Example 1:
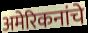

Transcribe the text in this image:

अमेरिकनांचे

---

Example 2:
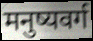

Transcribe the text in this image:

मनुष्यवर्ग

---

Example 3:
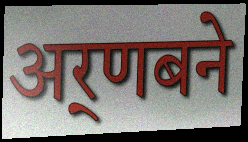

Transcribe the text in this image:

अर्णबने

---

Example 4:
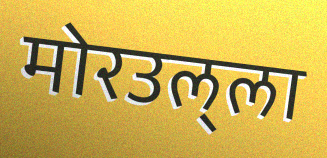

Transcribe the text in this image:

मोरउल्ला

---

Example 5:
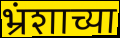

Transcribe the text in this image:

भ्रंशाच्या